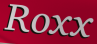
Roxx